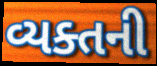
વ્યક્તની